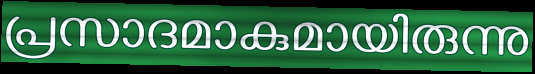
പ്രസാദമാകുമായിരുന്നു